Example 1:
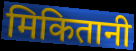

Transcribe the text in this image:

मिकितानी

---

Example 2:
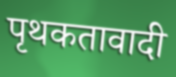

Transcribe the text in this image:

पृथकतावादी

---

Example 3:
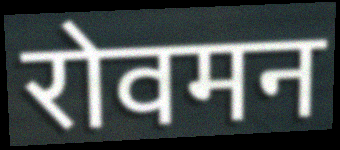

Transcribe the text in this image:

रोवमन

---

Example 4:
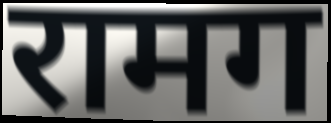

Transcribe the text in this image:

रामग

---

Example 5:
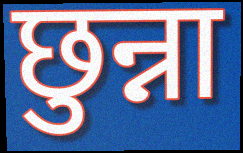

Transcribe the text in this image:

छुन्ना